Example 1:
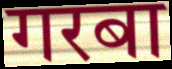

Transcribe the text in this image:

गरबा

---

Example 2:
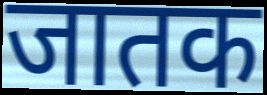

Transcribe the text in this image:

जातक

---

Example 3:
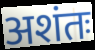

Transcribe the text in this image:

अशंतः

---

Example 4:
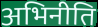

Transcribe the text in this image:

अभिनीति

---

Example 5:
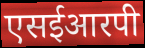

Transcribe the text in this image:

एसईआरपी